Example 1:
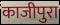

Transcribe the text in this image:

काजीपुरा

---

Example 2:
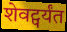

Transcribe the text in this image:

शेवट्पर्यंत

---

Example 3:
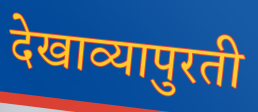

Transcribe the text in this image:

देखाव्यापुरती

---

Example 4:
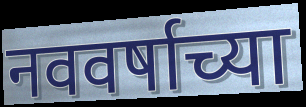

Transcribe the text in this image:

नववर्षाच्या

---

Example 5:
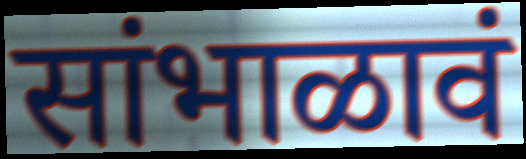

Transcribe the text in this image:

सांभाळावं